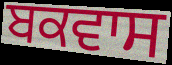
ਬਕਵਾਸ